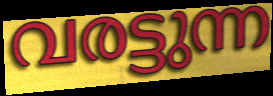
വരട്ടുന്ന